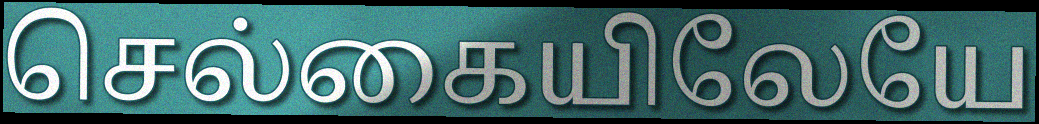
செல்கையிலேயே